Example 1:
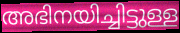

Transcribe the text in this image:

അഭിനയിച്ചിട്ടുള്ള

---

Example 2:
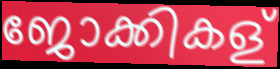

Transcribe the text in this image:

ജോക്കികള്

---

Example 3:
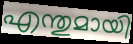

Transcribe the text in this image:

എന്തുമായി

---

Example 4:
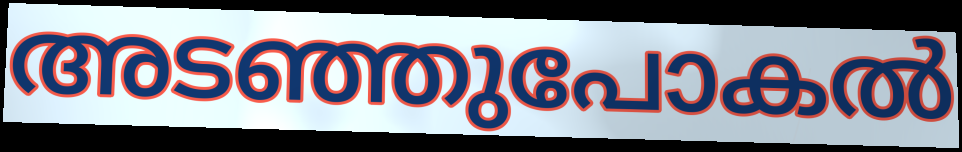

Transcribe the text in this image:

അടഞ്ഞുപോകൽ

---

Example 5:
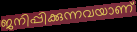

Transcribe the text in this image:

ജനിപ്പിക്കുന്നവയാണ്